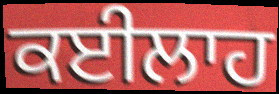
ਕਈਲਾਹ